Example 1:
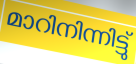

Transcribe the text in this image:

മാറിനിന്നിട്ടു്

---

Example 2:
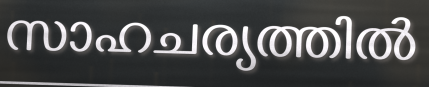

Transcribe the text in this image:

സാഹചര്യത്തിൽ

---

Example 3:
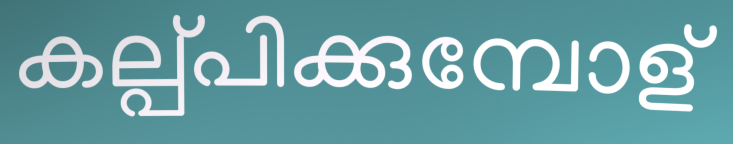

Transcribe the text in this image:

കല്പ്പിക്കുമ്പോള്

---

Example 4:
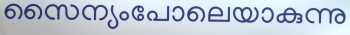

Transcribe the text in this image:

സൈന്യംപോലെയാകുന്നു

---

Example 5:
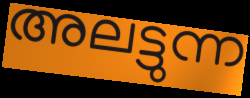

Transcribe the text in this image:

അലട്ടുന്ന